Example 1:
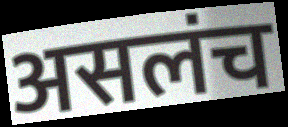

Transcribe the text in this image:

असलंच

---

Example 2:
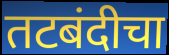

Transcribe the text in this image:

तटबंदीचा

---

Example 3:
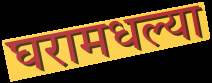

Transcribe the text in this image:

घरामधल्या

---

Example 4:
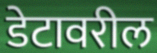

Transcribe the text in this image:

डेटावरील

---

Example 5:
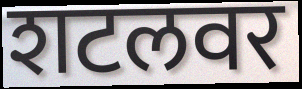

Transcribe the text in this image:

शटलवर